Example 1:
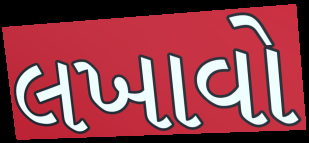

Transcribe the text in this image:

લખાવો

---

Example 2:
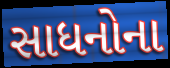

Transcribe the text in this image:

સાધનોના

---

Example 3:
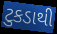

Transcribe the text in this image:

ટુકડાથી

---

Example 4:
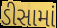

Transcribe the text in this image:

ડીસામાં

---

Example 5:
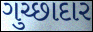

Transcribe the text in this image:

ગુચ્છાદાર